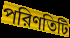
পরিণতিটি